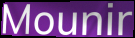
Mounir